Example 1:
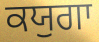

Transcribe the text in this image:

ਕਯੁਗਾ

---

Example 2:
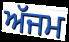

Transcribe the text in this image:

ਅੱਜਮ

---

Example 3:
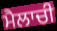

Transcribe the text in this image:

ਮੈਲਾਚੀ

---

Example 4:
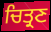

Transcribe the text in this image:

ਚਿਤ੍ਰਣ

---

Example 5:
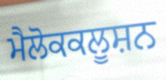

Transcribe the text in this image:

ਮੈਲੋਕਕਲੂਸ਼ਨ